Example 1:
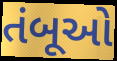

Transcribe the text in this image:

તંબૂઓ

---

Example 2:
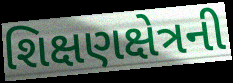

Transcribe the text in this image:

શિક્ષણક્ષેત્રની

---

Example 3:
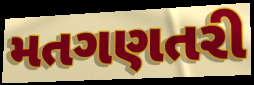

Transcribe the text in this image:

મતગણતરી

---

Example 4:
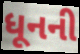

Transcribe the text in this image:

ધૂનની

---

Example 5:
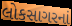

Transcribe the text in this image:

લોકસાગરનાં